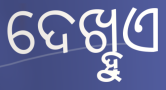
ଦେଖ୍ହୁଏ